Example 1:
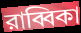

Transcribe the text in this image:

রাব্বিকা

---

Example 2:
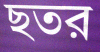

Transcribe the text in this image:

ছতর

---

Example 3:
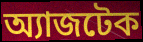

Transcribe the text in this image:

অ্যাজটেক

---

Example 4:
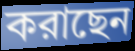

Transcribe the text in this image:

করাছেন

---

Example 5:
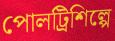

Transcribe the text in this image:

পোলট্রিশিল্পে